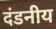
दंडनीय